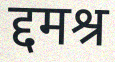
द्दमश्र